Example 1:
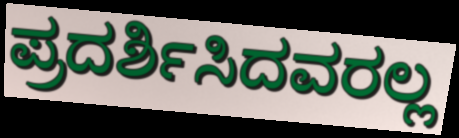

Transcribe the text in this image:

ಪ್ರದರ್ಶಿಸಿದವರಲ್ಲ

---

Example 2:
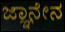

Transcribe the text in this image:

ಜ್ಞಾನೇನ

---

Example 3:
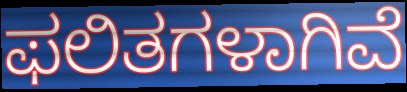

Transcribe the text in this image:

ಫಲಿತಗಳಾಗಿವೆ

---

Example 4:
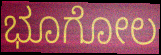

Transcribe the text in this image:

ಭೂಗೋಲ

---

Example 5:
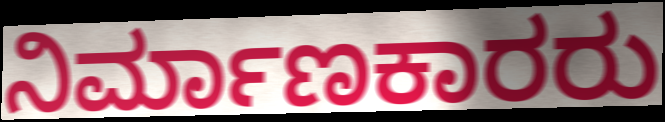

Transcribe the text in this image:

ನಿರ್ಮಾಣಕಾರರು